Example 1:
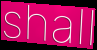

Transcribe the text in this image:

shall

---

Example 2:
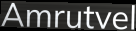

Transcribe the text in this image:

Amrutvel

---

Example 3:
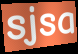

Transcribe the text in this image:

sjsa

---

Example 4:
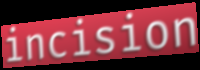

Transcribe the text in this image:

incision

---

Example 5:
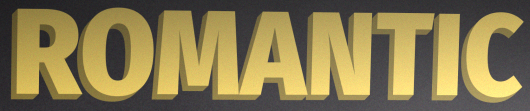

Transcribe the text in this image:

ROMANTIC